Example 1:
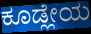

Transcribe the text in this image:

ಕೂಡ್ಲೇಯ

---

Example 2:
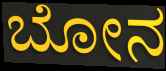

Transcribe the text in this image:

ಬೋನ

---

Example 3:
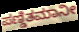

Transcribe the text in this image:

ಪಣ್ಡಿತಮಾನೀ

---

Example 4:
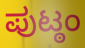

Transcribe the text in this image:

ಪುಟ್ಠಂ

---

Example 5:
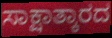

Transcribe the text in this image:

ಸಾಕ್ಷಾತ್ಕಾರದ